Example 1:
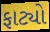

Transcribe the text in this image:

ફાટ્યો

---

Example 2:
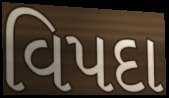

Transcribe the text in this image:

વિપદા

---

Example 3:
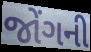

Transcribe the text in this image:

જોંગની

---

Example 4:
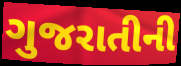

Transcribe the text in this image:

ગુજરાતીની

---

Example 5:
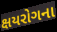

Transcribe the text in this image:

ક્ષયરોગના